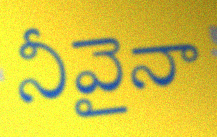
నీవైనా